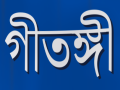
গীতঙ্গী